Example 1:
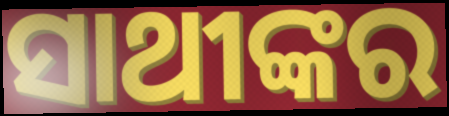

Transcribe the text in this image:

ସାଥୀଙ୍କର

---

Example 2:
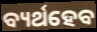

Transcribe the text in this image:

ବ୍ୟର୍ଥହେବ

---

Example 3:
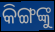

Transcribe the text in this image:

କିଙ୍ଗଙ୍କୁ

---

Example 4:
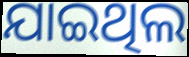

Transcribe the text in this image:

ଯାଇଥିଲ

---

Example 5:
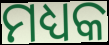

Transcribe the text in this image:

ମଧ୍ଯକ